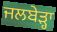
ਜਲਬੇੜ੍ਹਾ